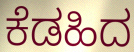
ಕೆಡಹಿದ